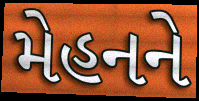
મેહનને